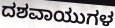
ದಶವಾಯುಗಳ